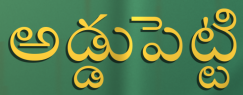
అడ్డుపెట్టి